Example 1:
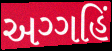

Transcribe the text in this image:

અગ્ગહિં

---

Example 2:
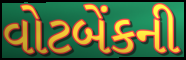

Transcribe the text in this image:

વોટબેંકની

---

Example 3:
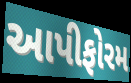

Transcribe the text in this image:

આપીફોરમ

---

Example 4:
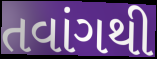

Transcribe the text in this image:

તવાંગથી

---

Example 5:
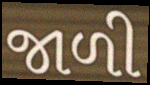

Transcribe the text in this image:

જાળી